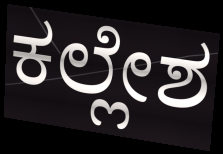
ಕಲ್ಲೇಶ